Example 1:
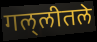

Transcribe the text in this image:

गल्लीतले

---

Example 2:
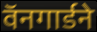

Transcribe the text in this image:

वॅनगार्डने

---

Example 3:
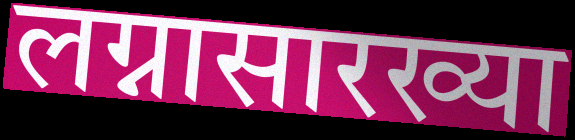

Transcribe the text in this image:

लग्नासारख्या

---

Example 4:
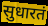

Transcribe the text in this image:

सुधारतं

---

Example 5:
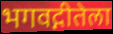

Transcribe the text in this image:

भगवद्गीतेला